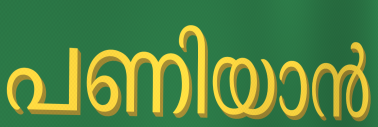
പണിയാൻ